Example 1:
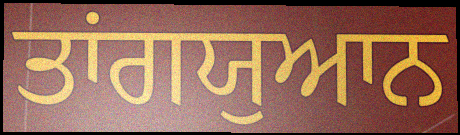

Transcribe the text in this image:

ਤਾਂਗਯੁਆਨ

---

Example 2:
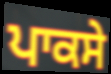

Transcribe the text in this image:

ਪਾਕਸੇ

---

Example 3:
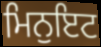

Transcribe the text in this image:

ਮਿਨੁਇਟ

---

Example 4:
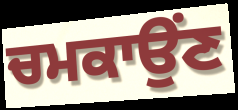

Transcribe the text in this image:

ਚਮਕਾਉਂਣ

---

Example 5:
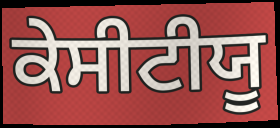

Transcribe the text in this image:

ਕੇਸੀਟੀਯੂ